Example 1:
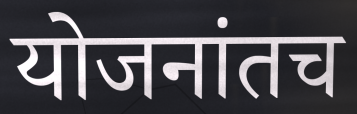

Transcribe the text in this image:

योजनांतच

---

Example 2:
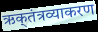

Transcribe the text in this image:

ऋक्‌तंत्रव्याकरण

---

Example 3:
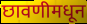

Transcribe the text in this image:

छावणीमधून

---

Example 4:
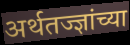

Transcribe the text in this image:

अर्थतज्ज्ञांच्या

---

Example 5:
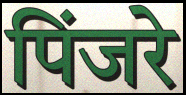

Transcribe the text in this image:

पिंजरे